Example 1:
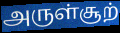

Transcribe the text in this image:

அருள்சூற்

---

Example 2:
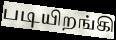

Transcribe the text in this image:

படியிறங்கி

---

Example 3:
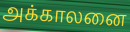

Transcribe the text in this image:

அக்காலனை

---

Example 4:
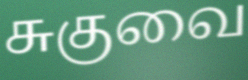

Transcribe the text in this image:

சுகுவை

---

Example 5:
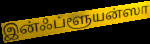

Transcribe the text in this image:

இன்ஃப்ளூயன்ஸா